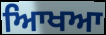
ਆਿਖਆ